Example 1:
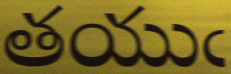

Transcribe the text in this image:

తయుఁ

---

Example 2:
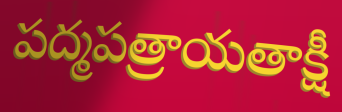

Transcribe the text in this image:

పద్మపత్రాయతాక్షీ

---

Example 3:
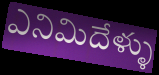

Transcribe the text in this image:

ఎనిమిదేళ్ళు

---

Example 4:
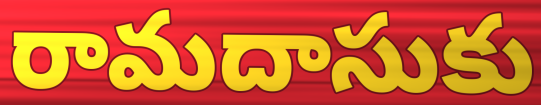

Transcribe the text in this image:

రామదాసుకు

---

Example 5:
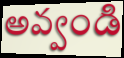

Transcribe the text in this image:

అవ్వండి